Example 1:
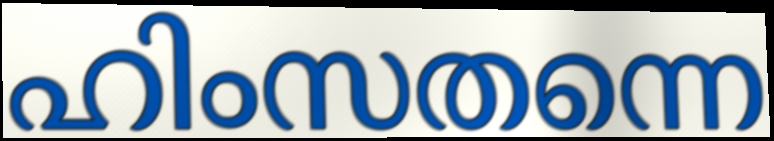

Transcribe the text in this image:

ഹിംസതന്നെ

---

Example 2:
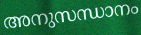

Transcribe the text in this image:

അനുസന്ധാനം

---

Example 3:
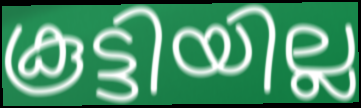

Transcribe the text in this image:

കൂട്ടിയില്ല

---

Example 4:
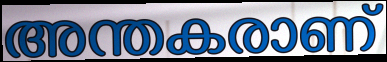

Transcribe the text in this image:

അന്തകരാണ്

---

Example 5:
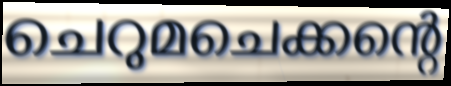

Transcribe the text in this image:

ചെറുമചെക്കന്റെ